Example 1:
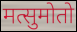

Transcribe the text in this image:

मत्सुमोतो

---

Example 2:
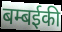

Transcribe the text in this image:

बम्बईकी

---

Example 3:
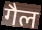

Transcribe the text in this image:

गैल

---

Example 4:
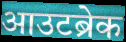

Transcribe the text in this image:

आउटब्रेक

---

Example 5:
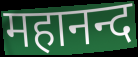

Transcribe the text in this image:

महानन्द